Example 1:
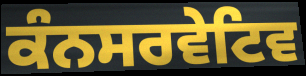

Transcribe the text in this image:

ਕੰਨਸਰਵੇਟਿਵ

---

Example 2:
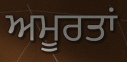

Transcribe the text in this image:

ਅਮੂਰਤਾਂ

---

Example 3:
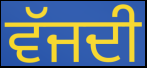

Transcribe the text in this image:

ਵੱਜਦੀ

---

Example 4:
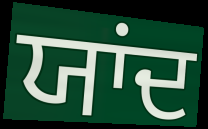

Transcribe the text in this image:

ਯਾਂਦ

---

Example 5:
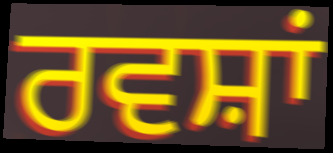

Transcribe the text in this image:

ਰਵਸ਼ਾਂ